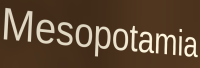
Mesopotamia